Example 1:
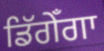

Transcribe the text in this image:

ਡਿੱਗੇਁਗਾ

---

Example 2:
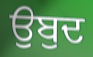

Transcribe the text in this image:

ਉਬੁਦ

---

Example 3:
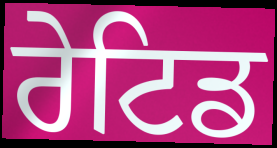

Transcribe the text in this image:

ਰੇਟਿਡ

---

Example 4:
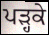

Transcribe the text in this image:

ਪੜ੍ਹਕੇ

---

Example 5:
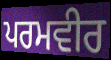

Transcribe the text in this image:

ਪਰਮਵੀਰ